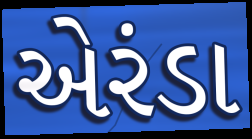
એરંડા